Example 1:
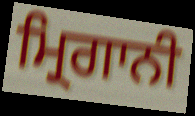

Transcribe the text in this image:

ਮ੍ਰਿਗਾਨੀ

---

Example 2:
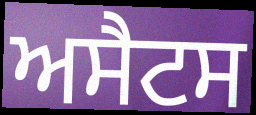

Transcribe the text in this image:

ਅਸੈਟਸ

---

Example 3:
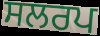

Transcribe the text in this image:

ਸਲਰਪ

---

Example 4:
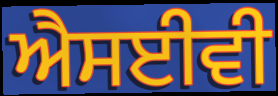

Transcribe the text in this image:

ਐਸਈਵੀ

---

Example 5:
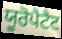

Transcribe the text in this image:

ਯੂਰੋਪੈਟੈਟ